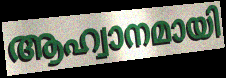
ആഹ്വാനമായി